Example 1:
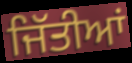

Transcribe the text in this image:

ਜਿੱਤੀਆਂ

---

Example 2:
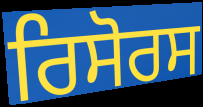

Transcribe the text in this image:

ਰਿਸੋਰਸ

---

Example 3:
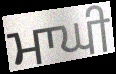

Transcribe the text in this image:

ਮਾਘੀ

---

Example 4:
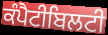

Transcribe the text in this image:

ਕੰਪੈਟੀਬਿਲਟੀ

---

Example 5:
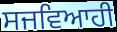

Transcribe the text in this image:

ਸਜਵਿਆਹੀ